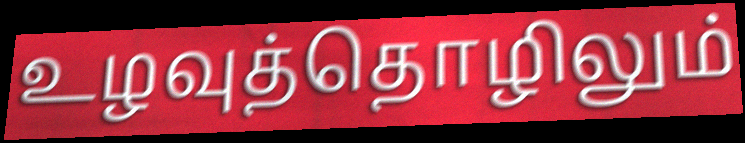
உழவுத்தொழிலும்